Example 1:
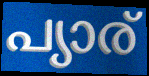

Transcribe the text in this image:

പ്യാര്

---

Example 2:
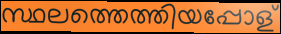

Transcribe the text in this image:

സ്ഥലത്തെത്തിയപ്പോള്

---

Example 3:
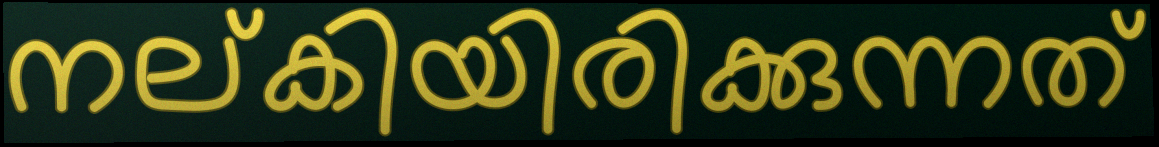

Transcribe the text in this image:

നല്കിയിരിക്കുന്നത്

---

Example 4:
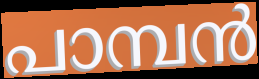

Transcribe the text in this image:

പാമ്പൻ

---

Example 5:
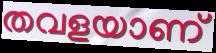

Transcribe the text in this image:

തവളയാണ്